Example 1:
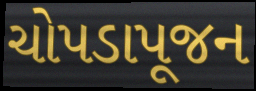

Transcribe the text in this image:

ચોપડાપૂજન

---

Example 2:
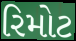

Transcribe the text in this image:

રિમોટ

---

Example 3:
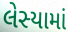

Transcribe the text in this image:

લેસ્યામાં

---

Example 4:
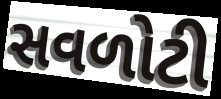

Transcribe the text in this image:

સવળોટી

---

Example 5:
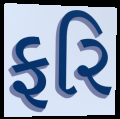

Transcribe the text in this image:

ફરિ